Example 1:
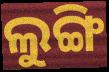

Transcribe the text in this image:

ଲୁଙ୍ଗି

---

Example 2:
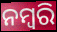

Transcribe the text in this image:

ନମ୍ବରି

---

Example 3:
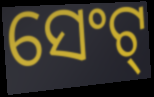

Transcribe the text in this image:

ସେଂଟ୍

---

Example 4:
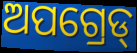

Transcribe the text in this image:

ଅପଗ୍ରେଡ୍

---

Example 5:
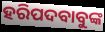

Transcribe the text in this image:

ହରିପଦବାବୁଙ୍କ